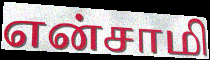
என்சாமி